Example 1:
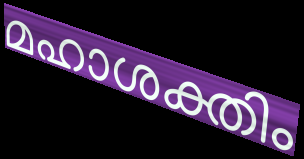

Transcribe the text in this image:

മഹാശക്തിം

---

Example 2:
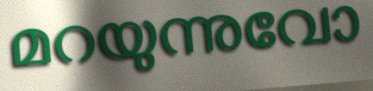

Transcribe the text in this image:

മറയുന്നുവോ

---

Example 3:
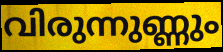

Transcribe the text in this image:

വിരുന്നുണ്ണും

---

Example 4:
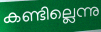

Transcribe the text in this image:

കണ്ടില്ലെന്നു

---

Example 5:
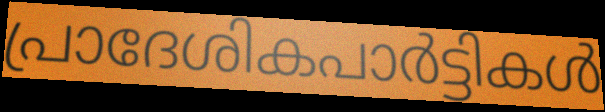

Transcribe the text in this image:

പ്രാദേശികപാർട്ടികൾ